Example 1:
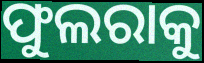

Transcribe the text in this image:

ଫୁଲରାକୁ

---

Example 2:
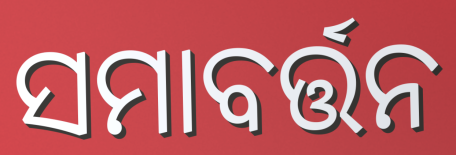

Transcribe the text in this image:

ସମାବର୍ତ୍ତନ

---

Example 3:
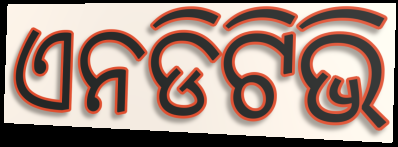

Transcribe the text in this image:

ଏନଡିଟିଭି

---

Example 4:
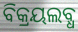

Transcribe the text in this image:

ବିକ୍ରୟଲବ୍ଧ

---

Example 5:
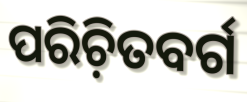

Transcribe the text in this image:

ପରିଚ଼ିତବର୍ଗ